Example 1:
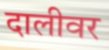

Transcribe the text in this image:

दालीवर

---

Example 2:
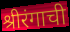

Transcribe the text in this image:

श्रीरंगाची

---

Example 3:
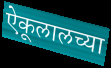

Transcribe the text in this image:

ऐकूलालच्या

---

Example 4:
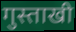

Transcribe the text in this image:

गुस्ताखी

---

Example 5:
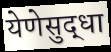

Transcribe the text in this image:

येणेसुद्धा